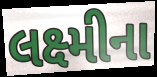
લક્ષ્મીના